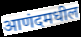
आणंदमधील